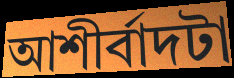
আশীর্বাদটা